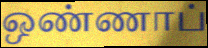
ஒண்ணாப்